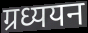
ग्रध्ययन